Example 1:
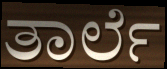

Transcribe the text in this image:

ತಾರ್ಲೆ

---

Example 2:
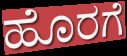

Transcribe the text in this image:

ಹೊರಗೆ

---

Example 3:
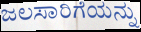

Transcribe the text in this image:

ಜಲಸಾರಿಗೆಯನ್ನು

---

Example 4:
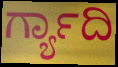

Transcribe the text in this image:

ರ್ಗ್ಯಾದಿ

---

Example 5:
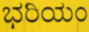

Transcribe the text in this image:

ಭರಿಯಂ